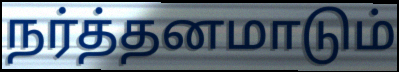
நர்த்தனமாடும்